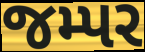
જમ્પર